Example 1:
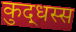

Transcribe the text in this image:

कुद्धस्स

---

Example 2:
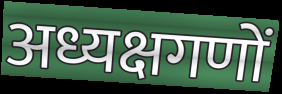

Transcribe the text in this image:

अध्यक्षगणों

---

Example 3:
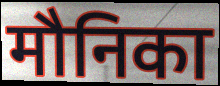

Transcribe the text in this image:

मौनिका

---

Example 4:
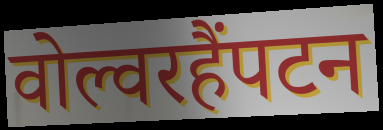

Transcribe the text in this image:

वोल्वरहैंपटन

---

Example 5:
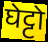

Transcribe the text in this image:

घेट्टो